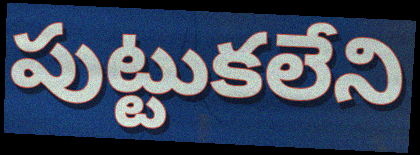
పుట్టుకలేని